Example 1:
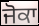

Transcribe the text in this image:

ਜੋਕਾ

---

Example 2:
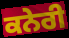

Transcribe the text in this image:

ਕਨੇਰੀ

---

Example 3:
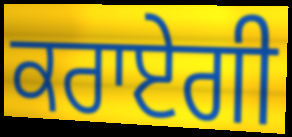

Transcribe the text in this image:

ਕਰਾਏਗੀ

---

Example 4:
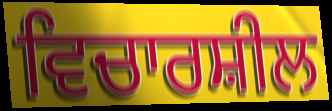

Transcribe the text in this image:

ਵਿਚਾਰਸ਼ੀਲ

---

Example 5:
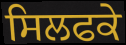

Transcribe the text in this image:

ਸਿਲਫਕੇ